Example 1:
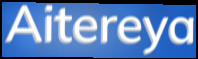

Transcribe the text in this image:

Aitereya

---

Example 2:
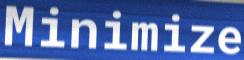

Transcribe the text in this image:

Minimize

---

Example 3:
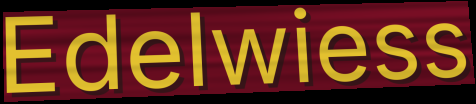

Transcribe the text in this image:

Edelwiess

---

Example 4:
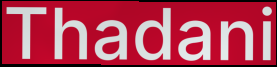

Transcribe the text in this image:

Thadani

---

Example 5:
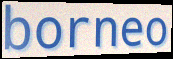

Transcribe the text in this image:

borneo